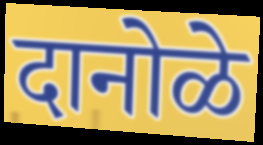
दानोळे